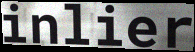
inlier